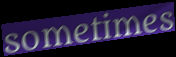
sometimes